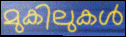
മുകിലുകൾ